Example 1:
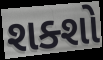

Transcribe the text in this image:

શક્શો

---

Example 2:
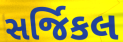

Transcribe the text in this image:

સર્જિકલ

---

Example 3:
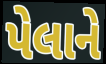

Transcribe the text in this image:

પેલાને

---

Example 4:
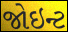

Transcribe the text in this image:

જોઇન્ટ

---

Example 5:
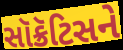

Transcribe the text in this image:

સૉક્રૅટિસને